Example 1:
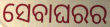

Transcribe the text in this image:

ସେବାଘରର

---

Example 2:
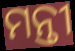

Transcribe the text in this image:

ମନ୍ତୀ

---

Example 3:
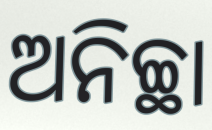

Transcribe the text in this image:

ଅନିଚ୍ଛା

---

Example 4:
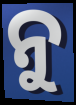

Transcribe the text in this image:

ନୁ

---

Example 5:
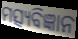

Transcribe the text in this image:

ମତ୍ସ୍ୟବିଜ୍ଞାନ